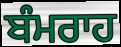
ਬੰਮਰਾਹ